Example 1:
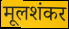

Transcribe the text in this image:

मूलशंकर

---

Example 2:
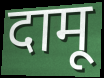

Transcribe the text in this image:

दामू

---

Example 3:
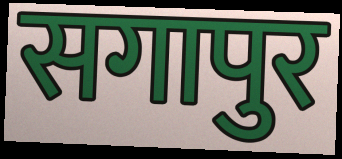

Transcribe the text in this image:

सगापुर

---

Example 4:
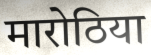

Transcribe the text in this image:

मारोठिया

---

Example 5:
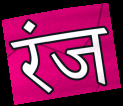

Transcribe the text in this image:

रंज